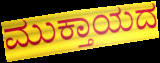
ಮುಕ್ತಾಯದ